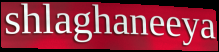
shlaghaneeya